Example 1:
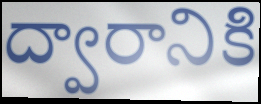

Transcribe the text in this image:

ద్వారానికి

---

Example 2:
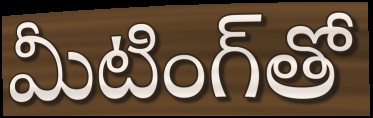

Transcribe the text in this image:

మీటింగ్‌తో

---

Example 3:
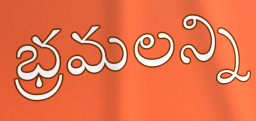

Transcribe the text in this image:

భ్రమలన్ని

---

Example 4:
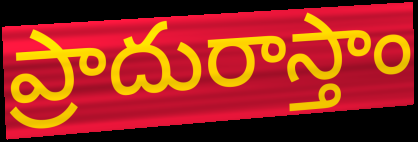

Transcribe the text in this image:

ప్రాదురాస్తాం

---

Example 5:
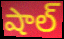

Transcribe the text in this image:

షాల్